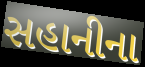
સહાનીના